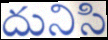
దునిసి